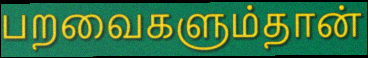
பறவைகளும்தான்